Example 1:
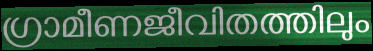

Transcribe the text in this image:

ഗ്രാമീണജീവിതത്തിലും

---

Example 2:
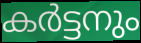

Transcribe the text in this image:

കർട്ടനും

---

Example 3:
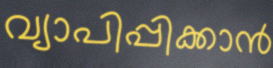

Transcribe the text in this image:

വ്യാപിപ്പിക്കാൻ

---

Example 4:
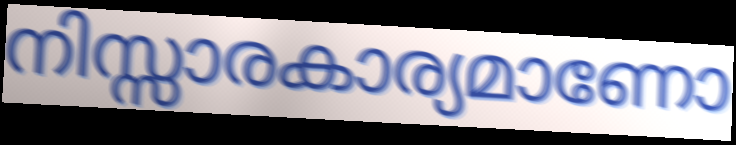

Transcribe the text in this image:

നിസ്സാരകാര്യമാണോ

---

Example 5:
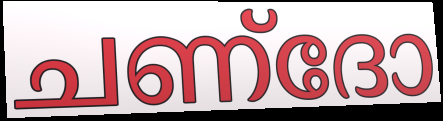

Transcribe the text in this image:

ചണ്ദോ